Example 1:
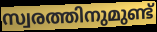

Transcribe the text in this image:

സ്വരത്തിനുമുണ്ട്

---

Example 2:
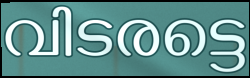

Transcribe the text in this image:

വിടരട്ടെ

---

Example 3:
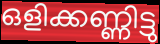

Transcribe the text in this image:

ഒളിക്കണ്ണിട്ടു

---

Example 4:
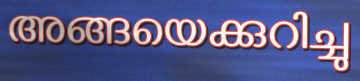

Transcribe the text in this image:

അങ്ങയെക്കുറിച്ചു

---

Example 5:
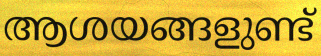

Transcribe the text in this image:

ആശയങ്ങളുണ്ട്